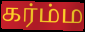
கர்ம்ம